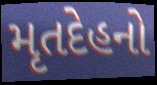
મૃતદેહનો